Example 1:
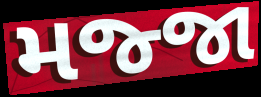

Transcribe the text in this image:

મજ્જા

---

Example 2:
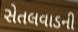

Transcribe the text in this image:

સેતલવાડની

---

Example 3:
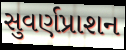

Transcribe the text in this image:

સુવર્ણપ્રાશન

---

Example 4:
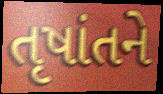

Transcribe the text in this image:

તૃષાંતને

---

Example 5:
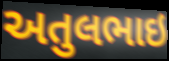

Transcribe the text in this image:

અતુલભાઇ